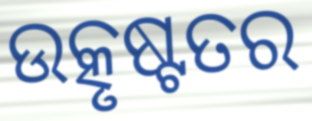
ଉତ୍କୃଷ୍ଟତର